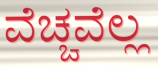
ವೆಚ್ಚವೆಲ್ಲ